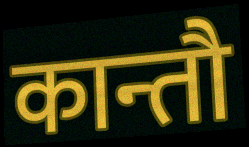
कान्तौ